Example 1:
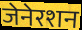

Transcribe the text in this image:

जेनेरशन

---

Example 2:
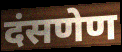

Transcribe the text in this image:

दंसणेण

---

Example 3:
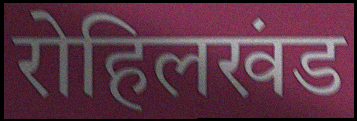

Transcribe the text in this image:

रोहिलखंड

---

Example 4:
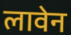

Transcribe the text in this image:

लावेन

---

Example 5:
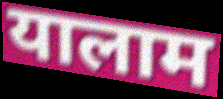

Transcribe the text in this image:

यालाम